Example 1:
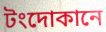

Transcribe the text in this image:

টংদোকানে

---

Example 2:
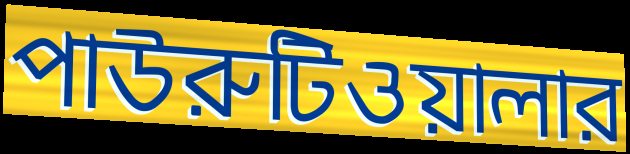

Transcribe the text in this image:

পাউরুটিওয়ালার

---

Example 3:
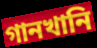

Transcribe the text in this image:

গানখানি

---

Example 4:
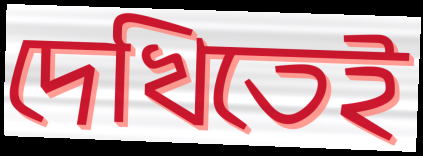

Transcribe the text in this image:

দেখিতেই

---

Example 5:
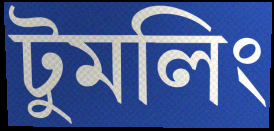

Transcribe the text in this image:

টুমলিং